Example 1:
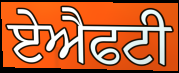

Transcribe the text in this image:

ਏਐਫਟੀ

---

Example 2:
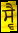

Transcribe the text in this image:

ਸ੍ਵੈ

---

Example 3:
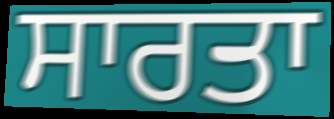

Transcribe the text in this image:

ਸਾਰਤਾ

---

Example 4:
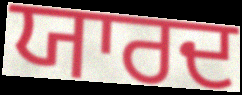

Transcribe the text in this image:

ਯਾਰਦ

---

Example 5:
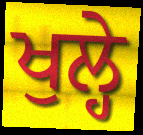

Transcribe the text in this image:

ਖੁਲ੍ਹੇ